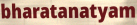
bharatanatyam